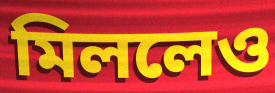
মিললেও